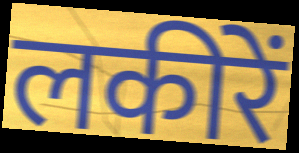
लकीरें